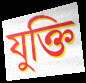
যুক্তি